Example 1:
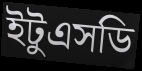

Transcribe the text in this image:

ইটুএসডি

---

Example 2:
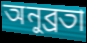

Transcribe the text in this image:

অনুব্রতা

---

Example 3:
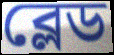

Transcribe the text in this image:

ব্লেড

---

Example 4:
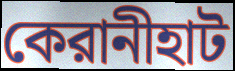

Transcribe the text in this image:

কেরানীহাট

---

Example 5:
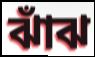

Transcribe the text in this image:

ঝাঁঝ